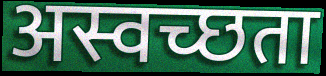
अस्वच्छता